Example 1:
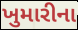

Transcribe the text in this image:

ખુમારીના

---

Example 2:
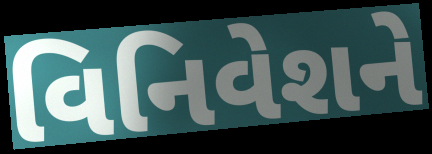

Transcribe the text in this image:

વિનિવેશને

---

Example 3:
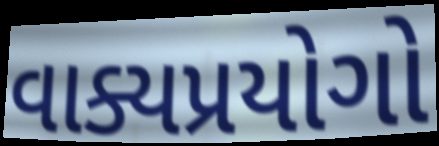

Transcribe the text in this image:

વાક્યપ્રયોગો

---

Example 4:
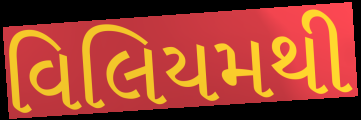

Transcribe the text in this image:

વિલિયમથી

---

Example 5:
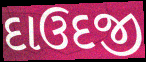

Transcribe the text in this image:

દાઉદજી